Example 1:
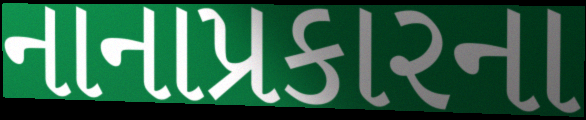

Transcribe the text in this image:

નાનાપ્રકારના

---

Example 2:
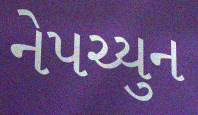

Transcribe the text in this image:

નેપચ્યુન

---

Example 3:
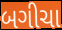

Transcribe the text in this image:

બગીચા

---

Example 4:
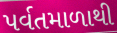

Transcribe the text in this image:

પર્વતમાળાથી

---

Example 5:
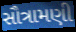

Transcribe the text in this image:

સૌત્રામણી